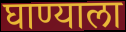
घाण्याला